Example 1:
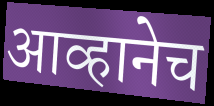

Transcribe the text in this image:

आव्हानेच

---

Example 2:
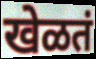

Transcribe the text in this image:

खेळतं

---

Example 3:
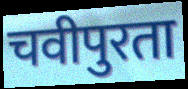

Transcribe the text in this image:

चवीपुरता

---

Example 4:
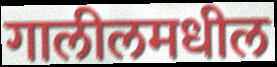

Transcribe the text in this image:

गालीलमधील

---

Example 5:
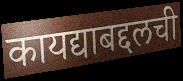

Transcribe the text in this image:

कायद्याबद्दलची